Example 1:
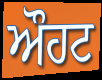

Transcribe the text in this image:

ਔਹਟ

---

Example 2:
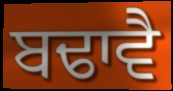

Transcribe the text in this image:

ਬਢਾਵੈ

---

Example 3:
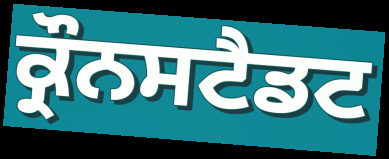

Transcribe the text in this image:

ਕ੍ਰੌਨਸਟੈਡਟ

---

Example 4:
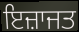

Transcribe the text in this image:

ਇਜ਼ਾਜਤ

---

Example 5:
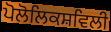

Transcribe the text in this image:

ਪੋਲੋਲਿਕਸ਼ਵਿਲੀ